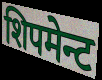
शिपमेन्ट